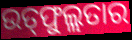
ଉତ୍‌ଫୁଲ୍ଲତାର